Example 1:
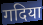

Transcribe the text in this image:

गदिया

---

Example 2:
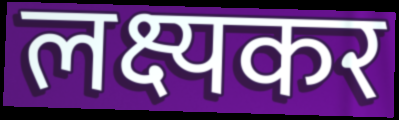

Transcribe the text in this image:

लक्ष्यकर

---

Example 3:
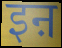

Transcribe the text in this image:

इऩ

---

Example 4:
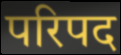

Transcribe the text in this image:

परिपद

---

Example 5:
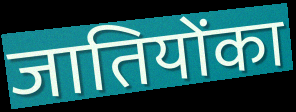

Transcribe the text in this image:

जातियोंका